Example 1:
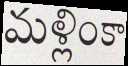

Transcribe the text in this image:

మళ్లింకా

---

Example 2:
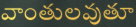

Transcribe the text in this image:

వాంతులవుతూ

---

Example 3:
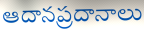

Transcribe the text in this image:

ఆదానప్రదానాలు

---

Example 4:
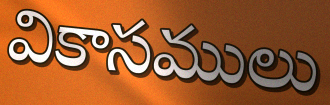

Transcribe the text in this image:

వికాసములు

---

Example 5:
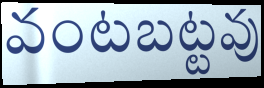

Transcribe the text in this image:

వంటబట్టవు